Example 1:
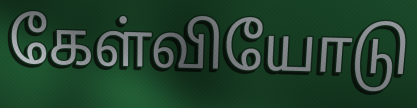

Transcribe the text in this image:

கேள்வியோடு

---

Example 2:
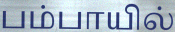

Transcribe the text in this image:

பம்பாயில்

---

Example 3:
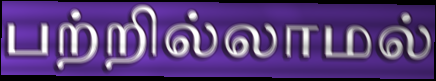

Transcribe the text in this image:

பற்றில்லாமல்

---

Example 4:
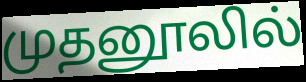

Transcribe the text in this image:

முதனூலில்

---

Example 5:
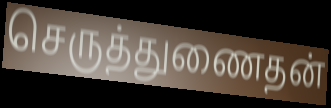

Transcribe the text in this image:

செருத்துணைதன்